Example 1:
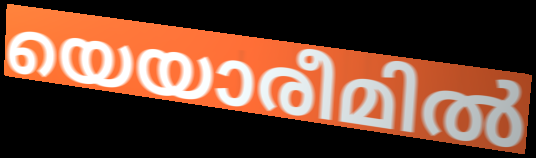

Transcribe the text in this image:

യെയാരീമിൽ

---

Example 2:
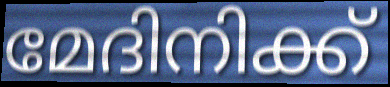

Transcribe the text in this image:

മേദിനിക്ക്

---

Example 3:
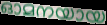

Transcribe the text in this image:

ഓമനയായ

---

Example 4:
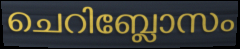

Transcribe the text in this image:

ചെറിബ്ലോസം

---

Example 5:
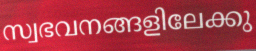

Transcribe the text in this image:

സ്വഭവനങ്ങളിലേക്കു